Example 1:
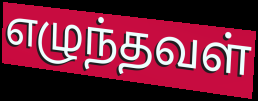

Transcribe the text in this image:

எழுந்தவள்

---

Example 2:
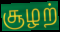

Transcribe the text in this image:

சூழற்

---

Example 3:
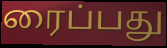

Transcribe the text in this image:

ரைப்பது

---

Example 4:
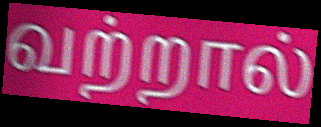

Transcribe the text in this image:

வற்றால்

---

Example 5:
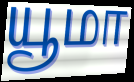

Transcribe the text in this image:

யூமா